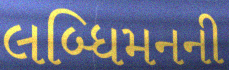
લબ્ધિમનની